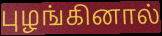
புழங்கினால்